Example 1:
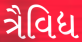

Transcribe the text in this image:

ત્રૈવિદ્ય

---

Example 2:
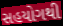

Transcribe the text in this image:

સહયોગથી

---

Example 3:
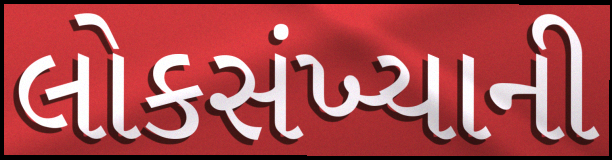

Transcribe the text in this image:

લોકસંખ્યાની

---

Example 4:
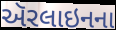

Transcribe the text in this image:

ઍરલાઇનના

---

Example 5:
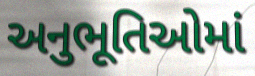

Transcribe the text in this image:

અનુભૂતિઓમાં